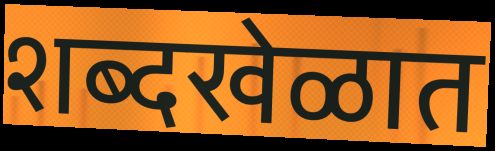
शब्दखेळात